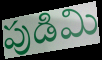
పుడిమి